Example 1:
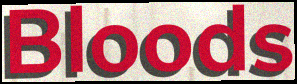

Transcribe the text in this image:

Bloods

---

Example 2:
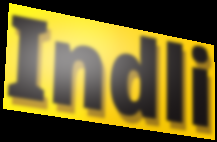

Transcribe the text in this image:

Indli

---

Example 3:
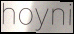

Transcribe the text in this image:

hoyni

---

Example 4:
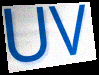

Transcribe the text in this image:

UV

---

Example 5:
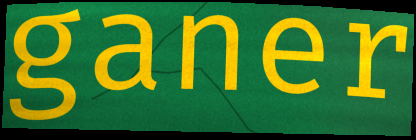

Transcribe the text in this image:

ganer